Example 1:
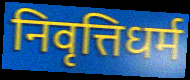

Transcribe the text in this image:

निवृत्तिधर्म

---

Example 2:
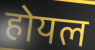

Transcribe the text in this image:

होयल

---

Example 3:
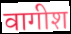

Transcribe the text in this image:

वागीश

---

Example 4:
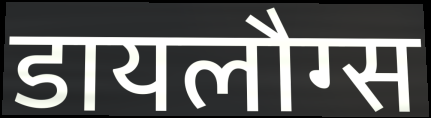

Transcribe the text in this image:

डायलौग्स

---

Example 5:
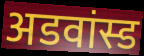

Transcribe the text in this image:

अडवांस्ड